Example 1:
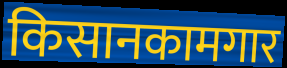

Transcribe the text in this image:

किसानकामगार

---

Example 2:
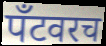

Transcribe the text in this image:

पँटवरच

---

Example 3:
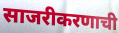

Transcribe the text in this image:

साजरीकरणाची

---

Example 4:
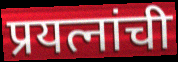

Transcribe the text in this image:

प्रयत्नांची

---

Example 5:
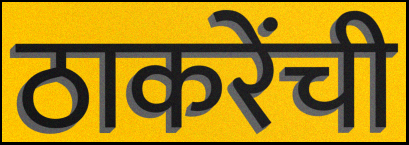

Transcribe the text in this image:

ठाकरेंची